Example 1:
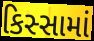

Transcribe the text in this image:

કિસ્સામાં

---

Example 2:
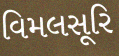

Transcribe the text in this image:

વિમલસૂરિ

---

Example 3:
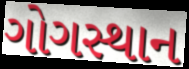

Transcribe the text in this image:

ગોગસ્થાન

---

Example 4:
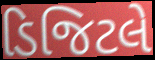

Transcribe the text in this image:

ડિજિટલે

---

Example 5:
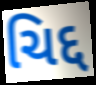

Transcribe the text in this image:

ચિદ્દ